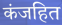
कंजहित